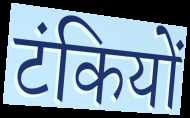
टंकियों